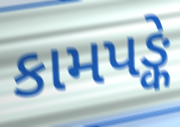
કામપઙ્કે